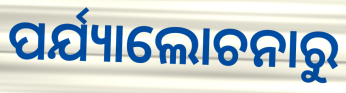
ପର୍ଯ୍ୟାଲୋଚନାରୁ